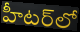
హీటర్‌లో